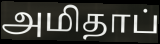
அமிதாப்